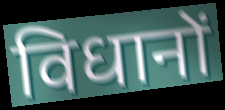
विधानों